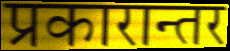
प्रकारान्तर